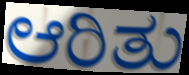
ಆರಿತು